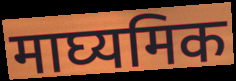
माघ्यमिक